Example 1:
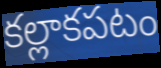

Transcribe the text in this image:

కల్లాకపటం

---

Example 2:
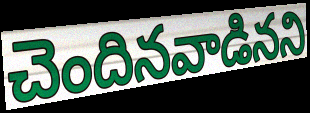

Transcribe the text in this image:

చెందినవాడినని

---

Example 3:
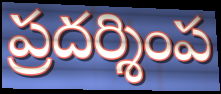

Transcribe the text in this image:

ప్రదర్శింప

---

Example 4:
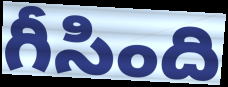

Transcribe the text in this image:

గీసింది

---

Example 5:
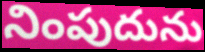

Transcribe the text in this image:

నింపుదును